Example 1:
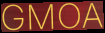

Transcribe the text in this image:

GMOA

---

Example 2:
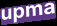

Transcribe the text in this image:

upma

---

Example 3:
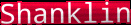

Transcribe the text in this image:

Shanklin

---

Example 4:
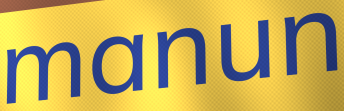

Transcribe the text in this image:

manun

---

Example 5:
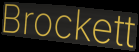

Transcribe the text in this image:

Brockett